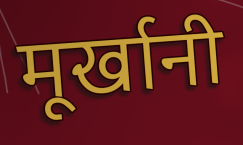
मूर्खानी